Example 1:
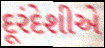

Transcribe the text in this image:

દૂરંદેશીએ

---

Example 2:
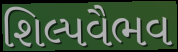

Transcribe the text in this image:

શિલ્પવૈભવ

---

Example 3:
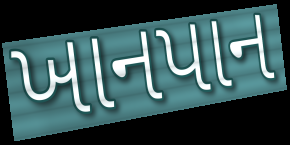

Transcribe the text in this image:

ખાનપાન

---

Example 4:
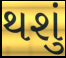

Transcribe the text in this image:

થશું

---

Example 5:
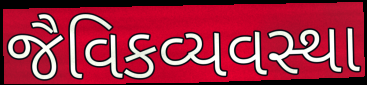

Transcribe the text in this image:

જૈવિકવ્યવસ્થા